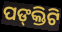
ପଙ୍‌କ୍ତିଟି